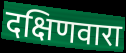
दक्षिणवारा